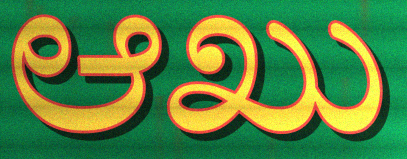
ಆಖು